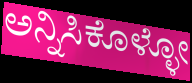
ಅನ್ನಿಸಿಕೊಳ್ಳೋ